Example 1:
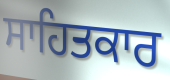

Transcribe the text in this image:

ਸਾਹਿਤਕਾਰ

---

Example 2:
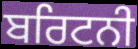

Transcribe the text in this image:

ਬਰਿਟਨੀ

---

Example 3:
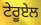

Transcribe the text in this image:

ਟੇਰੂਏਲ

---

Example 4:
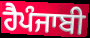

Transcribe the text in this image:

ਹੈਪੰਜਾਬੀ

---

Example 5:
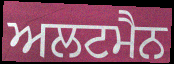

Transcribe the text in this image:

ਅਲਟਮੈਨ